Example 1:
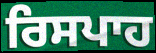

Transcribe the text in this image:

ਰਿਸਪਾਹ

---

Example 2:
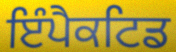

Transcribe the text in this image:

ਇੰਪੈਕਟਿਡ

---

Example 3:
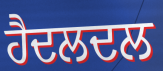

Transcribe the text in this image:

ਹੈਦਲਦਲ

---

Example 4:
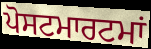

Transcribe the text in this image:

ਪੋਸਟਮਾਰਟਮਾਂ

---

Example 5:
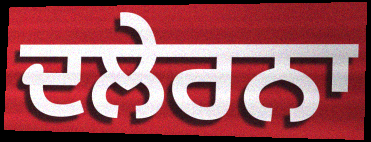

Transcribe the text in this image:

ਦਲੇਰਨਾ